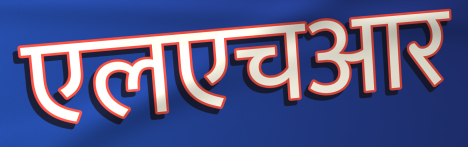
एलएचआर